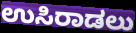
ಉಸಿರಾಡಲು